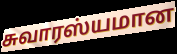
சுவாரஸ்யமான